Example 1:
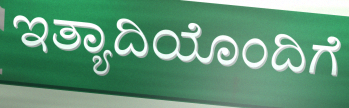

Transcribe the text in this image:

ಇತ್ಯಾದಿಯೊಂದಿಗೆ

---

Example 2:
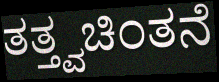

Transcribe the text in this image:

ತತ್ತ್ವಚಿಂತನೆ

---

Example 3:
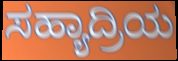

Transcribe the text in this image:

ಸಹ್ಯಾದ್ರಿಯ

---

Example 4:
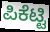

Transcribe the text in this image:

ಪಿಕೆಟ್ಟಿ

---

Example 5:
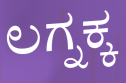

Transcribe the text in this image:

ಲಗ್ನಕ್ಕ